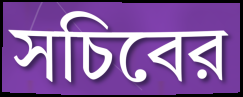
সচিবের